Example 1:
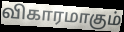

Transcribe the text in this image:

விகாரமாகும்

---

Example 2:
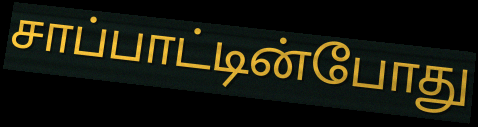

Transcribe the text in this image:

சாப்பாட்டின்போது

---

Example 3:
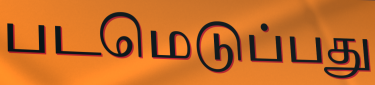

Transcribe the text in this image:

படமெடுப்பது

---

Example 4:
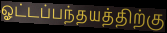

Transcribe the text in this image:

ஓட்டப்பந்தயத்திற்கு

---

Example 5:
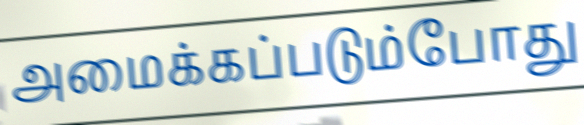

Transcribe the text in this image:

அமைக்கப்படும்போது